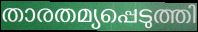
താരതമ്യപ്പെടുത്തി